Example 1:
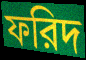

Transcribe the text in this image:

ফরিদ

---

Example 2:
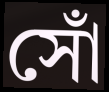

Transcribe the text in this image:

সোঁ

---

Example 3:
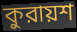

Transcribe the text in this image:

কুরায়শ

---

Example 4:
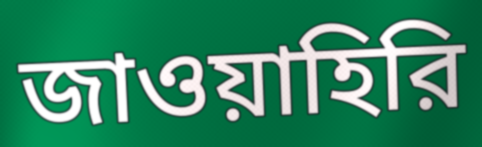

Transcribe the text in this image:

জাওয়াহিরি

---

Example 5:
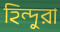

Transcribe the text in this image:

হিন্দুরা